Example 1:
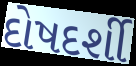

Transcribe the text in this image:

દોષદર્શી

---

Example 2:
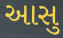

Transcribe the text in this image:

આસુ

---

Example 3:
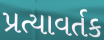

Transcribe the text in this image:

પ્રત્યાવર્તક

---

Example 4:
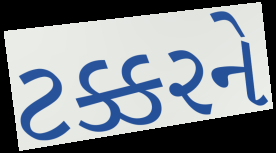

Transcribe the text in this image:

ટક્કરને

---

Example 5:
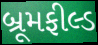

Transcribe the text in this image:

બ્રૂમફીલ્ડ